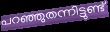
പറഞ്ഞുതന്നിട്ടുണ്ട്